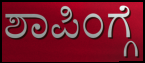
ಶಾಪಿಂಗ್ಗೆ